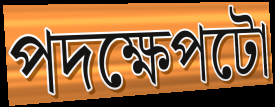
পদক্ষেপটো